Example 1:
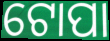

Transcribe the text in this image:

ଟୋପା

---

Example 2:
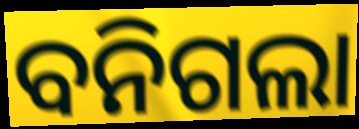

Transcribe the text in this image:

ବନିଗଲା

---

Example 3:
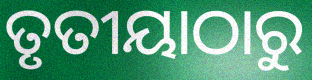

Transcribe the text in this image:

ତୃତୀୟାଠାରୁ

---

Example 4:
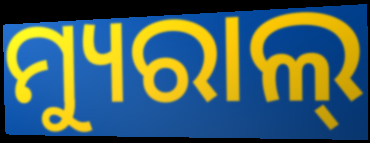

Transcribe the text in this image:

ମ୍ୟୁରାଲ୍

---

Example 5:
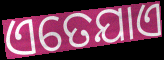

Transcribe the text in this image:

ଏତେଯାଏ